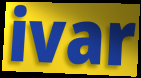
ivar